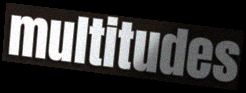
multitudes